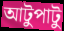
আটুপাটু